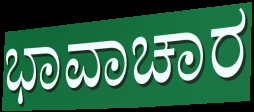
ಭಾವಾಚಾರ